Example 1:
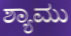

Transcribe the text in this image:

ಶ್ಯಾಮು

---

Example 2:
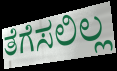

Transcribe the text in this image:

ತೆಗೆಸಲಿಲ್ಲ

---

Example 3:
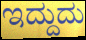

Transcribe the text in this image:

ಇದ್ದುದು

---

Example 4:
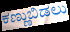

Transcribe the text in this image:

ಕಣ್ಣುಬಿಡಲು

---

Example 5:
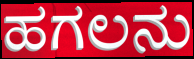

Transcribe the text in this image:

ಹಗಲನು